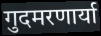
गुदमरणार्या